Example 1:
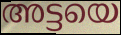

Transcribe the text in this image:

അട്ടയെ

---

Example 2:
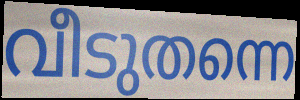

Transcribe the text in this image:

വീടുതന്നെ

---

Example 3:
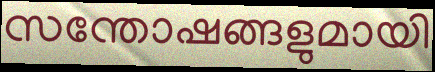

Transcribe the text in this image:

സന്തോഷങ്ങളുമായി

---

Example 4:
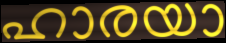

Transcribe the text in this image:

ഹാരയാ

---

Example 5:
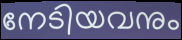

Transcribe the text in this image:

നേടിയവനും